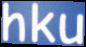
hku